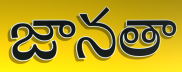
జానతా